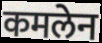
कमलेन